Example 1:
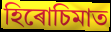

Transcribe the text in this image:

হিৰোচিমাত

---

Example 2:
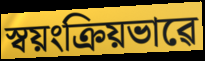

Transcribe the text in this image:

স্বয়ংক্ৰিয়ভাৱে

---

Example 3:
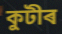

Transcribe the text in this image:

কুটীৰ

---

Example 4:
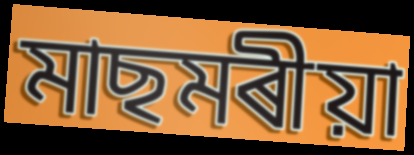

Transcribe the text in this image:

মাছমৰীয়া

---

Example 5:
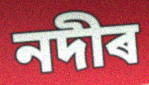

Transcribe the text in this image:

নদীৰ